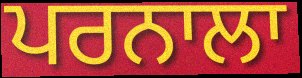
ਪਰਨਾਲਾ